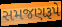
સમજણરૂપે